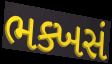
ભક્ખસં